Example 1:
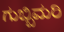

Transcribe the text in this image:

ಗುಬ್ಬಿಮರಿ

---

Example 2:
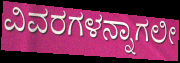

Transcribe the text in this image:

ವಿವರಗಳನ್ನಾಗಲೀ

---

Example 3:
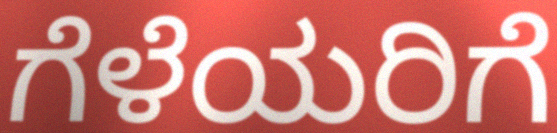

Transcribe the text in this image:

ಗೆಳೆಯರಿಗೆ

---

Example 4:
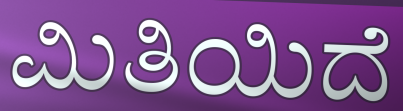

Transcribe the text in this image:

ಮಿತಿಯಿದೆ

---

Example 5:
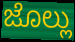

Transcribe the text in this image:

ಜೊಲ್ಲು